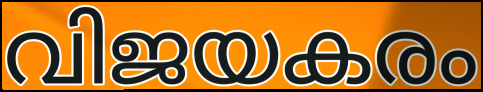
വിജയകരം